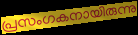
പ്രസംഗകനായിരുന്നു